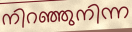
നിറഞ്ഞുനിന്ന